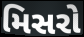
મિસરો